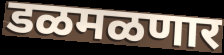
डळमळणार